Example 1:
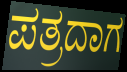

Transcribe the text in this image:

ಪತ್ರದಾಗ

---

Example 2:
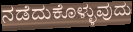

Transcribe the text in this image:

ನಡೆದುಕೊಳ್ಳುವುದು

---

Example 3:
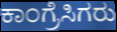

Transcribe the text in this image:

ಕಾಂಗ್ರೆಸಿಗರು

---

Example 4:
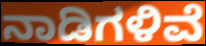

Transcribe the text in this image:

ನಾಡಿಗಳಿವೆ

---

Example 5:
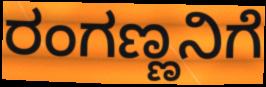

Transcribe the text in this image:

ರಂಗಣ್ಣನಿಗೆ